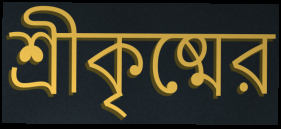
শ্রীকৃষ্মের